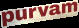
purvam